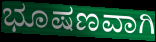
ಭೂಷಣವಾಗಿ